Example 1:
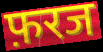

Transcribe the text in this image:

फ़रज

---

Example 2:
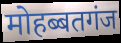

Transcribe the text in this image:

मोहब्बतगंज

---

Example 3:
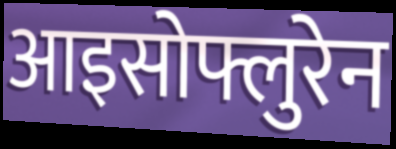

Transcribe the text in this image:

आइसोफ्लुरेन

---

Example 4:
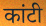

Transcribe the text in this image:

कांटी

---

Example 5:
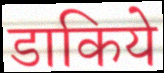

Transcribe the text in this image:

डाकिये